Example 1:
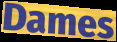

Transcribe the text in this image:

Dames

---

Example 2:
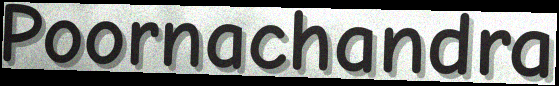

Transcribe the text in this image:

Poornachandra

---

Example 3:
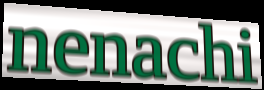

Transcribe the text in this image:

nenachi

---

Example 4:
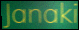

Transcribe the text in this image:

Janaki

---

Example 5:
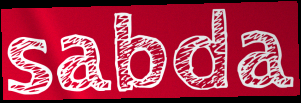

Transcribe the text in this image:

sabda